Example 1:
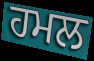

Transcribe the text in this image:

ਹਮਲ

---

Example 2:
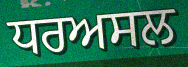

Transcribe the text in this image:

ਧਰਅਸਲ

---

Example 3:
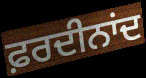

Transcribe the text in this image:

ਫ਼ਰਦੀਨਾਂਦ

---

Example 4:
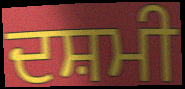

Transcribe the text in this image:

ਦਸ਼ਮੀ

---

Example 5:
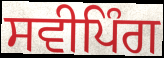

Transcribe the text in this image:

ਸਵੀਪਿੰਗ